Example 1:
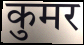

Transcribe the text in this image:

कुमर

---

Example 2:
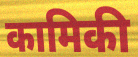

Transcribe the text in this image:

कामिकी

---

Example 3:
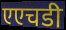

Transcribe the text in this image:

एएचडी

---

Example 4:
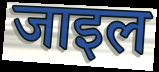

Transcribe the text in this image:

जाइल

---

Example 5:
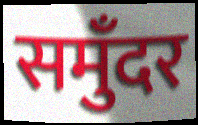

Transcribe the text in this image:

समुँदर